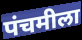
पंचमीला